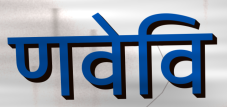
णवेवि